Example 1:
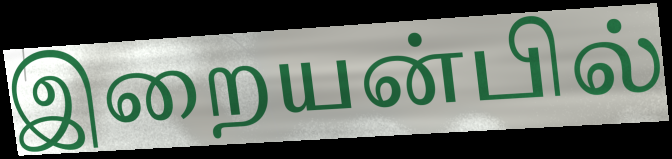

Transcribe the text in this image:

இறையன்பில்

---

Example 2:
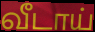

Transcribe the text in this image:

வீடாய்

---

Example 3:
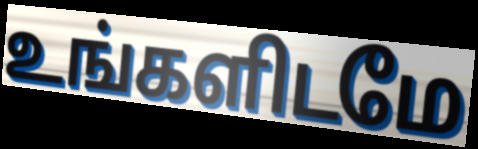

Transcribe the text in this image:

உங்களிடமே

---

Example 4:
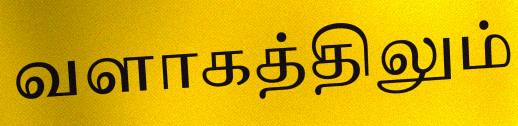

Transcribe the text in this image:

வளாகத்திலும்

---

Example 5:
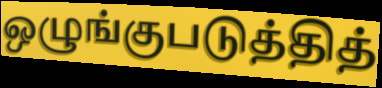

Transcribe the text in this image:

ஒழுங்குபடுத்தித்